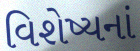
વિશેષ્યનાં